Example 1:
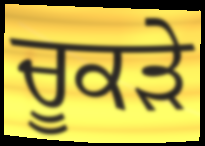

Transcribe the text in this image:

ਚੂਕੜੇ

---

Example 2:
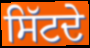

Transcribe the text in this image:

ਸਿੱਟਦੇ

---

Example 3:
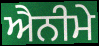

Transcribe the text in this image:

ਐਨੀਮੇ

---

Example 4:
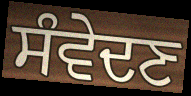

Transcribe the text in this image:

ਸੰਵੇਦਣ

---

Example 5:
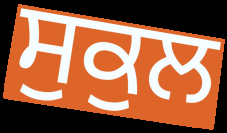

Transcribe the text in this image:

ਸੁਕੁਲ